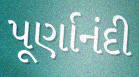
પૂર્ણાનંદી